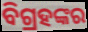
ବିଗ୍ରହଙ୍କର